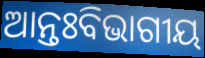
ଆନ୍ତଃବିଭାଗୀୟ